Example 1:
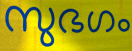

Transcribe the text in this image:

സുഭഗം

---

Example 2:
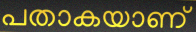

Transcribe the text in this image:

പതാകയാണ്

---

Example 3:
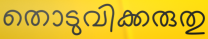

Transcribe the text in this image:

തൊടുവിക്കരുതു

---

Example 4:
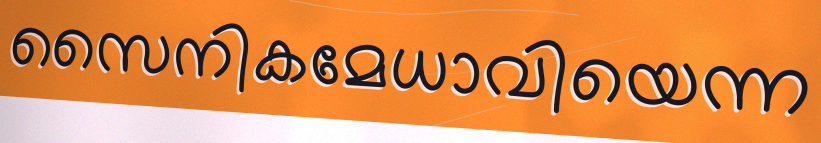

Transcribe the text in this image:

സൈനികമേധാവിയെന്ന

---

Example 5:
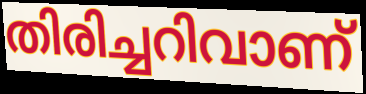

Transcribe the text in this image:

തിരിച്ചറിവാണ്